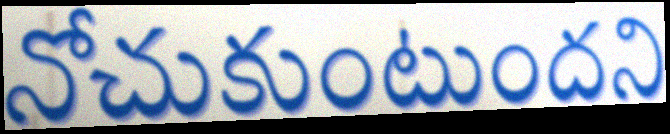
నోచుకుంటుందని